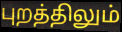
புறத்திலும்